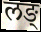
लङ्